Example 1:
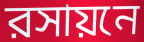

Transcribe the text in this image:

রসায়নে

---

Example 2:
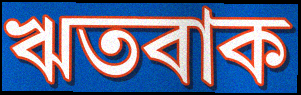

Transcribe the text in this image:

ঋতবাক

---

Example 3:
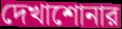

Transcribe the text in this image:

দেখাশোনার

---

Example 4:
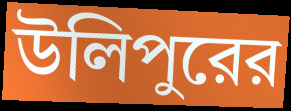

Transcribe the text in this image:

উলিপুরের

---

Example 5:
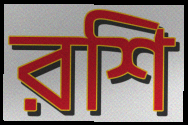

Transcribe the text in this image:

রশি